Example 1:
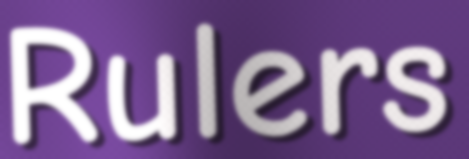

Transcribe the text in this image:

Rulers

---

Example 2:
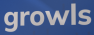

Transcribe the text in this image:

growls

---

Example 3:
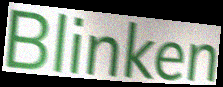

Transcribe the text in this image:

Blinken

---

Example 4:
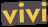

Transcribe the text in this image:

vivi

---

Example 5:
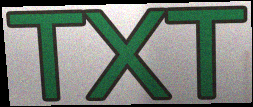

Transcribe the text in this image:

TXT